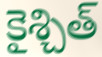
కైశ్చిత్